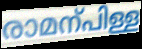
രാമന്പിള്ള